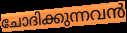
ചോദിക്കുന്നവൻ